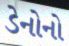
ડેનોનો